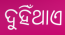
ଦୁହିଁଥାଏ